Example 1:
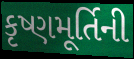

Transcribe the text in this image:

કૃષ્ણમૂર્તિની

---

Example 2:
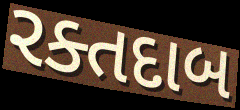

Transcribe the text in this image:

રક્તદાબ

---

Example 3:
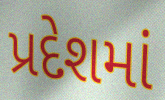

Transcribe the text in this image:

પ્રદેશમાં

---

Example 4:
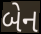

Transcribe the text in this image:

બેન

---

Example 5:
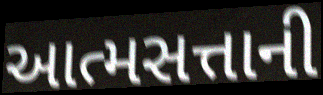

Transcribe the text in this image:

આત્મસત્તાની